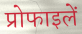
प्रोफाइलें